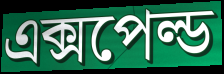
এক্সপেল্ড